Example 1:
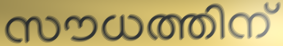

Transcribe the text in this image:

സൗധത്തിന്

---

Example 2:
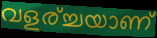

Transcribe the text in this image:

വളര്ച്ചയാണ്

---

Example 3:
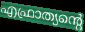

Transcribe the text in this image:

എഫ്രാത്യന്റെ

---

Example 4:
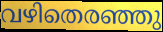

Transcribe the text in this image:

വഴിതെരഞ്ഞു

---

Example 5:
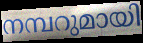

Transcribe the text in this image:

നമ്പറുമായി